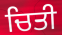
ਚਿਤੀ